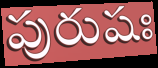
పురుషః